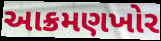
આક્રમણખોર